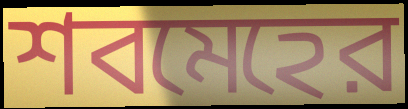
শবমেহের